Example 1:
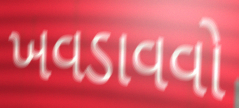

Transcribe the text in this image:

ખવડાવવો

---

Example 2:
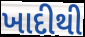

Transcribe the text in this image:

ખાદીથી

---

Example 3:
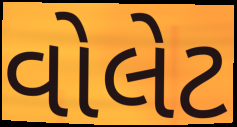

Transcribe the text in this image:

વોલેટ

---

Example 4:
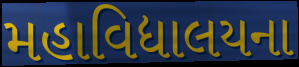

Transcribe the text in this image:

મહાવિદ્યાલયના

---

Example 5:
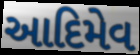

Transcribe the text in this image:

આદિમેવ